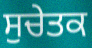
ਸੁਚੇਤਕ